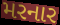
મરનાર